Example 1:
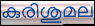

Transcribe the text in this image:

കുരിശുമല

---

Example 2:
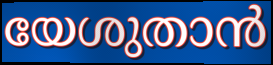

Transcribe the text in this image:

യേശുതാൻ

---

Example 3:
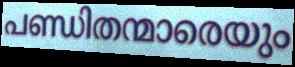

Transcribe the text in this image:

പണ്ഡിതന്മാരെയും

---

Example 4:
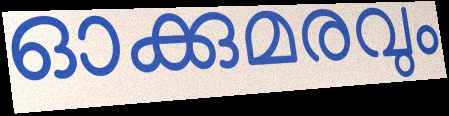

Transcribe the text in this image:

ഓക്കുമരവും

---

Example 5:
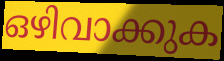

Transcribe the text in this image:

ഒഴിവാക്കുക